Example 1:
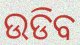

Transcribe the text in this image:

ଉଡିବ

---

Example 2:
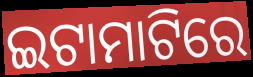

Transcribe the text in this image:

ଇଟାମାଟିରେ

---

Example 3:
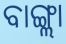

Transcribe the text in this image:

ବାଙ୍ଗ୍ଲା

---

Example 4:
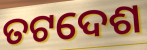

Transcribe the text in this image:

ତଟଦେଶ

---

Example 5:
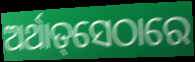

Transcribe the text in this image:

ଅର୍ଥାତ୍‌ସେଠାରେ